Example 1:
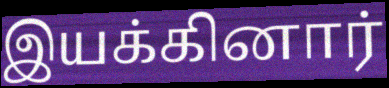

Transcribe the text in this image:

இயக்கினார்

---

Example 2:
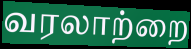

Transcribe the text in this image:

வரலாற்றை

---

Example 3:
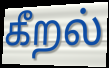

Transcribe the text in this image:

கீறல்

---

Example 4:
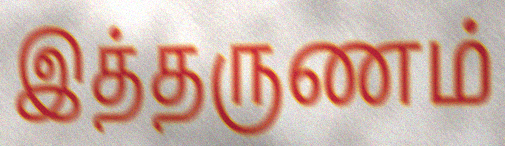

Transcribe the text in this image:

இத்தருணம்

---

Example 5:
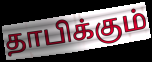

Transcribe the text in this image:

தாபிக்கும்